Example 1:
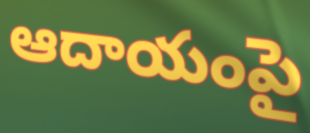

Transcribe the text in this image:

ఆదాయంపై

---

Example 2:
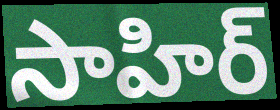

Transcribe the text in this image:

సాహిర్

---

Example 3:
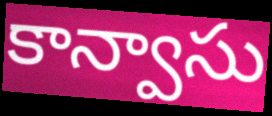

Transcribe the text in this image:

కాన్వాసు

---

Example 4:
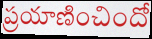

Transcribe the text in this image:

ప్రయాణించిందో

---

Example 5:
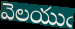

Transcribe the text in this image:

వెలయుఁ